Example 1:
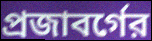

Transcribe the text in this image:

প্রজাবর্গের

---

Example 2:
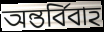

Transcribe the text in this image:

অন্তর্বিবাহ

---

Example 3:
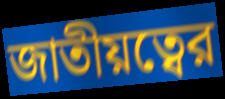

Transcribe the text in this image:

জাতীয়ত্বের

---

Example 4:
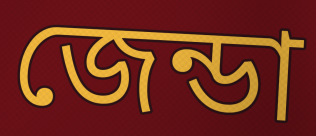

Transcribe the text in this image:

জেন্ডা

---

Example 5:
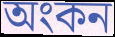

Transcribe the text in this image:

অংকন